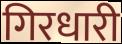
गिरधारी